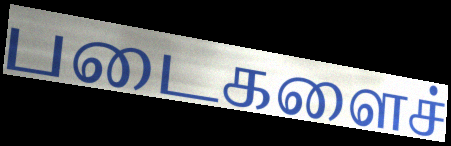
படைகளைச்